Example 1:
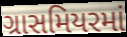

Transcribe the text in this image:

ગ્રાસમિયરમાં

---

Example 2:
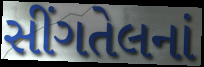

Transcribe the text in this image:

સીંગતેલનાં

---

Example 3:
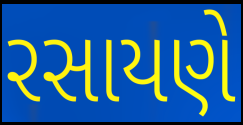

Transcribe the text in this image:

રસાયણે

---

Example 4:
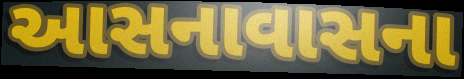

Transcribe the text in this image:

આસનાવાસના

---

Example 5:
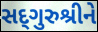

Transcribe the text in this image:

સદ્‌ગુરુશ્રીને